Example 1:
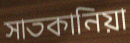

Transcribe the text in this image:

সাতকানিয়া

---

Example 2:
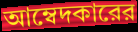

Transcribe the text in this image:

আম্বেদকারের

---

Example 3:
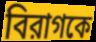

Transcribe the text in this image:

বিরাগকে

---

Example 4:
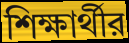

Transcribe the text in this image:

শিক্ষার্থীর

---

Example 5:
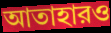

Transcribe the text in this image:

আতাহারও